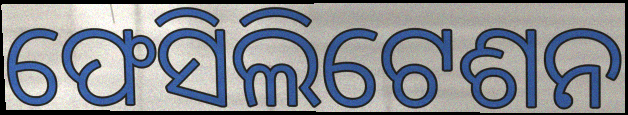
ଫେସିଲିଟେଶନ